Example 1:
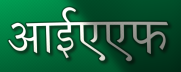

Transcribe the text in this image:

आईएएफ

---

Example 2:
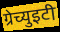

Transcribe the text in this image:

ग्रेच्युइटी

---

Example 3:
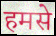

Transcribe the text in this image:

हमसे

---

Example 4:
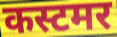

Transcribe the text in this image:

कस्टमर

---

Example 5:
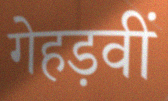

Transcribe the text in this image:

गेहड़वीं